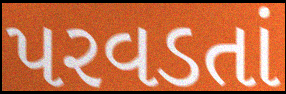
પરવડતાં